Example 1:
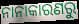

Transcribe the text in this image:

ନାନାକାରଣରୁ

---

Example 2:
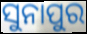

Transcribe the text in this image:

ସୁନାପୁର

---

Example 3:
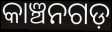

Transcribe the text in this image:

କାଞ୍ଚନଗଡ଼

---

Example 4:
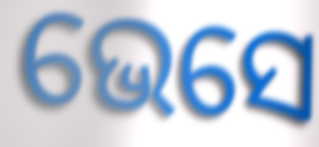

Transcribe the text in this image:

ଭେସେ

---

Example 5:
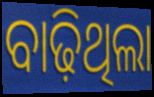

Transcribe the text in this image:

ବାଢ଼ିଥିଲା